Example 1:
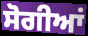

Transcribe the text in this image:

ਸੋਗੀਆਂ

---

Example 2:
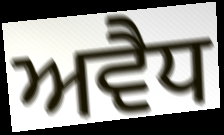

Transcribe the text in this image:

ਅਵੈਧ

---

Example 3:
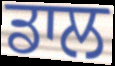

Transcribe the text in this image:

ਡਾਲ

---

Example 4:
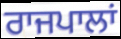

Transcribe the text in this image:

ਰਾਜਪਾਲਾਂ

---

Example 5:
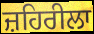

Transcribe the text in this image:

ਜ਼ਹਿਰੀਲਾ